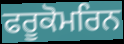
ਫਰੂਕੋਮਰਿਨ